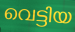
വെട്ടിയ